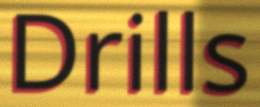
Drills